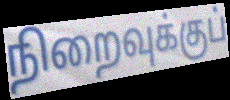
நிறைவுக்குப்